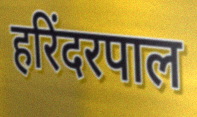
हरिंदरपाल